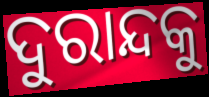
ଦୁରାନ୍ଦକୁ